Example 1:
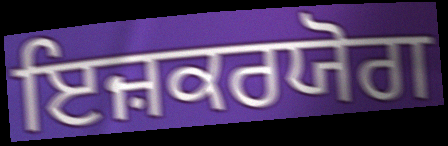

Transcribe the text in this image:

ਇਜ਼ਕਰਯੋਗ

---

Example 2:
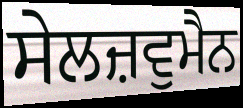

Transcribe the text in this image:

ਸੇਲਜ਼ਵੁਮੈਨ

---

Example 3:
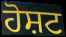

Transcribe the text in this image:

ਹੋਸ਼ਟ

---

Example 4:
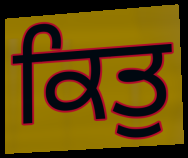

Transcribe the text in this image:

ਕਿਤੁ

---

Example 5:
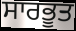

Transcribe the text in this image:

ਸਾਰਭੂਤ